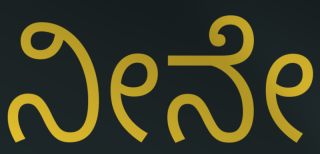
ನೀನೇ